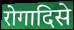
रोगादिसे